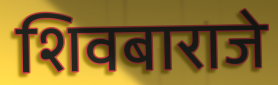
शिवबाराजे